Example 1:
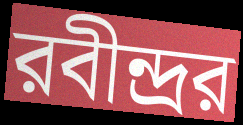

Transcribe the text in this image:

রবীন্দ্রর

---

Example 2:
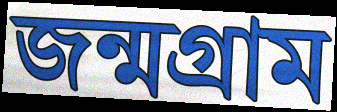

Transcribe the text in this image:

জন্মগ্রাম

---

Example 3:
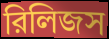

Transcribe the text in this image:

রিলিজস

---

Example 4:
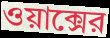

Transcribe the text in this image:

ওয়াক্সের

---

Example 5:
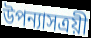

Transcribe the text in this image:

উপন্যাসত্রয়ী